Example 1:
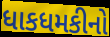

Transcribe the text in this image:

ધાકધમકીનો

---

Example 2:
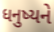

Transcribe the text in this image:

ધનુષ્યને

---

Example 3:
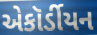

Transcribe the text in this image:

એકૉર્ડીયન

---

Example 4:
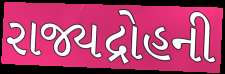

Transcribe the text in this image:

રાજ્યદ્રોહની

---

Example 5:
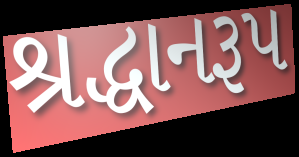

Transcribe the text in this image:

શ્રદ્ધાનરૂપ